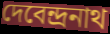
দেবেন্দ্রনাথ